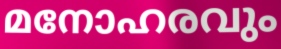
മനോഹരവും